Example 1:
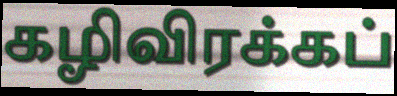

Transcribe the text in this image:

கழிவிரக்கப்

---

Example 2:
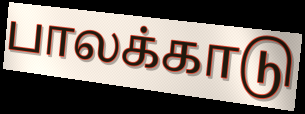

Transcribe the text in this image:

பாலக்காடு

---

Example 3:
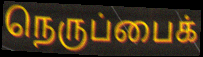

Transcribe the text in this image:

நெருப்பைக்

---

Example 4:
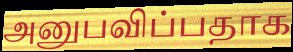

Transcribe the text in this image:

அனுபவிப்பதாக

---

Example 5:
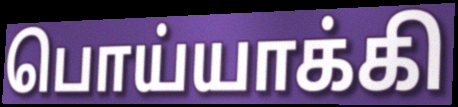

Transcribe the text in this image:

பொய்யாக்கி